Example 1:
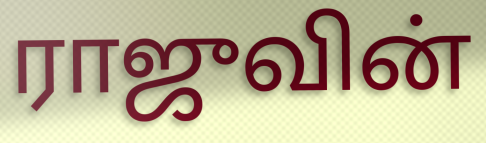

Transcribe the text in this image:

ராஜுவின்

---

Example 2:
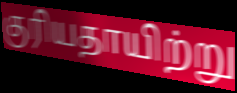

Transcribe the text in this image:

குரியதாயிற்று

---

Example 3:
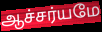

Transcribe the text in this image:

ஆச்சர்யமே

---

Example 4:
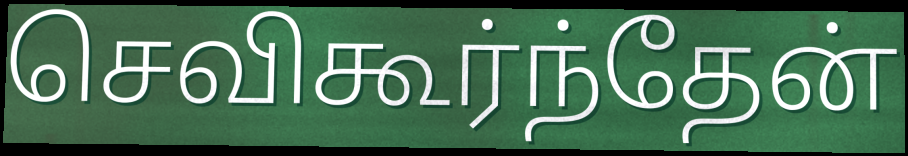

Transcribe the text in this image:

செவிகூர்ந்தேன்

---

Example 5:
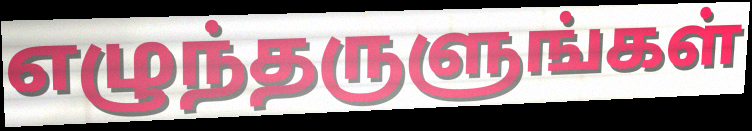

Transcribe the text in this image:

எழுந்தருளுங்கள்